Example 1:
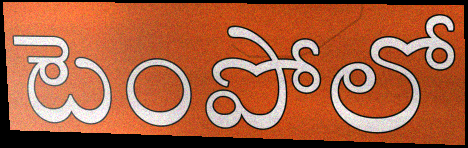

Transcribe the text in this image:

టెంపోలో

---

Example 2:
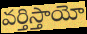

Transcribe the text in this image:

వర్తిస్తాయో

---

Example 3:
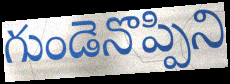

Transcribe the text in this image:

గుండెనొప్పిని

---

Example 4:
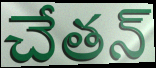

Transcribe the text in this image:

చేతన్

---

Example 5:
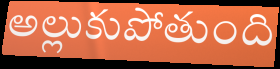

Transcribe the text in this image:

అల్లుకుపోతుంది